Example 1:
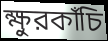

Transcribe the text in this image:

ক্ষুরকাঁচি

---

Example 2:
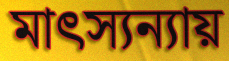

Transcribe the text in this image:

মাৎস্যন্যায়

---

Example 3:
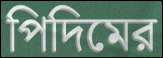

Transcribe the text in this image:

পিদিমের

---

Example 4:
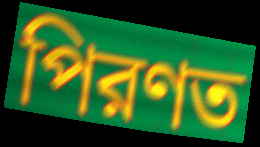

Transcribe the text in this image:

পিরণত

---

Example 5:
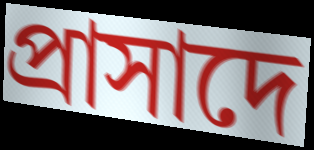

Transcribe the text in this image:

প্রাসাদে